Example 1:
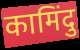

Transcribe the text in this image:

कामिंदु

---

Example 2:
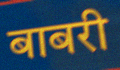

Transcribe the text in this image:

बाबरी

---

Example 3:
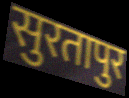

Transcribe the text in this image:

सुरतापुर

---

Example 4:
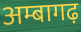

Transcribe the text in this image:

अम्बागढ़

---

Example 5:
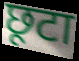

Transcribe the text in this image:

छूटा